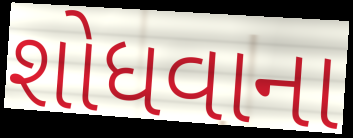
શોધવાના